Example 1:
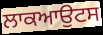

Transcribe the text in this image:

ਲਾਕਆਉਟਸ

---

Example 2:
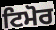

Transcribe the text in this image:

ਟਿਮੋਰ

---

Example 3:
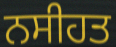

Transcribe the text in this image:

ਨਸੀਹਤ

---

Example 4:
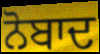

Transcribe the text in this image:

ਨੋਬਾਦ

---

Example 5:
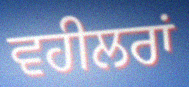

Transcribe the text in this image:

ਵਹੀਲਰਾਂ